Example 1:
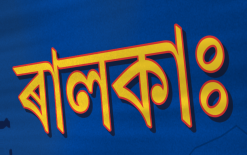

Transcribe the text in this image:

ৰালকাঃ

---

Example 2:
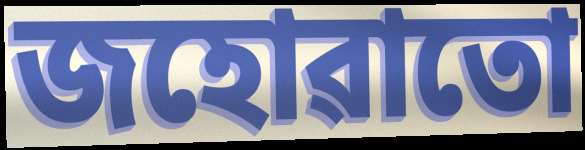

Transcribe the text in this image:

জহোৱাতো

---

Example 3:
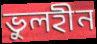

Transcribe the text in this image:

ভুলহীন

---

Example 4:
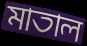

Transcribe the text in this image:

মাতাল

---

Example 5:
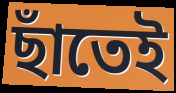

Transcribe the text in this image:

ছাঁতেই